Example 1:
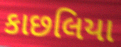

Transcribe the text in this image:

કાછલિયા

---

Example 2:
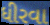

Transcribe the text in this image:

ધીરવા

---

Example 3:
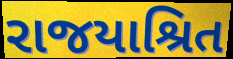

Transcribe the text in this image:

રાજયાશ્રિત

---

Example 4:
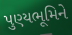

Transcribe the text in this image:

પુણ્યભૂમિને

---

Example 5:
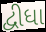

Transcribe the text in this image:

દ્વીધા